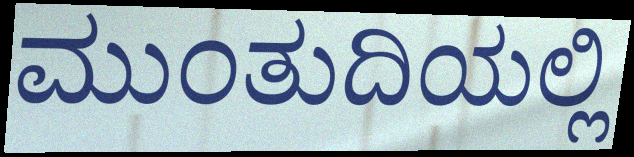
ಮುಂತುದಿಯಲ್ಲಿ